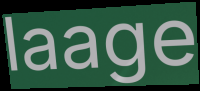
laage